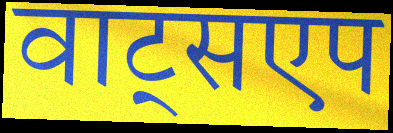
वाट्सएप